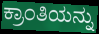
ಕ್ರಾಂತಿಯನ್ನು